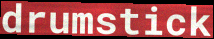
drumstick